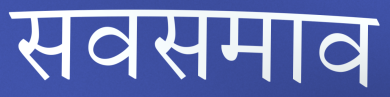
सवसमाव